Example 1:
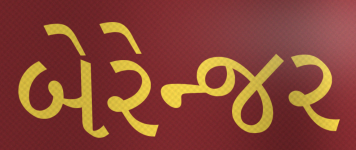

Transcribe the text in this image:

બેરેન્જર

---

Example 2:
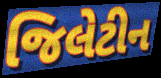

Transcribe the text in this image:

જિલેટીન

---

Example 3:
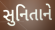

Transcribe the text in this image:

સુનિતાને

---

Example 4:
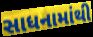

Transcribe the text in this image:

સાધનામાંથી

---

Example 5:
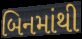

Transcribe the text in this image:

બિનમાંથી